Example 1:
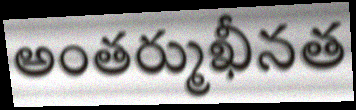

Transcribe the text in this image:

అంతర్ముఖీనత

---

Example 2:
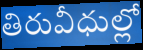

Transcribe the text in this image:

తిరువీధుల్లో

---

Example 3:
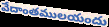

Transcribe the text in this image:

వేదాంతములయందు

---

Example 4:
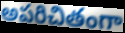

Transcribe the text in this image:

అపరిచితంగా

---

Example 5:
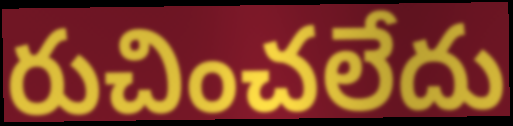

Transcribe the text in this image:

రుచించలేదు